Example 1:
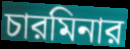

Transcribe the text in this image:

চারমিনার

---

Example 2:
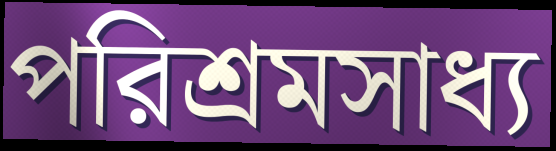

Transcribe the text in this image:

পরিশ্রমসাধ্য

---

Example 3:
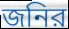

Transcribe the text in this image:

জনির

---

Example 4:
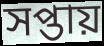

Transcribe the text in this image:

সপ্তায়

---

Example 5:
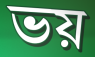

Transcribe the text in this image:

ভয়